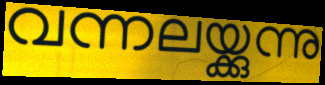
വന്നലയ്ക്കുന്നു